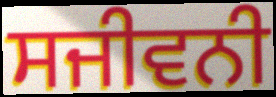
ਸਜੀਵਨੀ